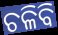
ଚଳିବି